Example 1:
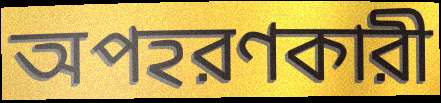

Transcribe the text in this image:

অপহরণকারী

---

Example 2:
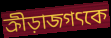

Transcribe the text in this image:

ক্রীড়াজগৎকে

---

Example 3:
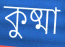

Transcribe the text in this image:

কুষ্মা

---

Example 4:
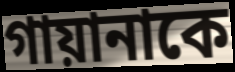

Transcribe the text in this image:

গায়ানাকে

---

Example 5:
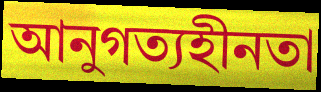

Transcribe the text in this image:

আনুগত্যহীনতা